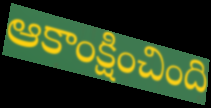
ఆకాంక్షించింది